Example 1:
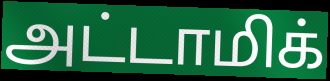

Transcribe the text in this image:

அட்டாமிக்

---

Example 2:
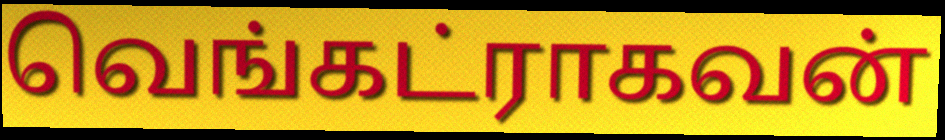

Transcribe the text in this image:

வெங்கட்ராகவன்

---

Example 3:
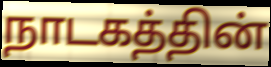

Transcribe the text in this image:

நாடகத்தின்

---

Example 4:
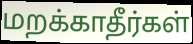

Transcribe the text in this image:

மறக்காதீர்கள்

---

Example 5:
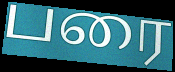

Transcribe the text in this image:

பரை